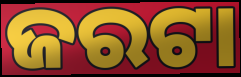
ଜରଟା